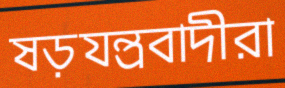
ষড়যন্ত্রবাদীরা